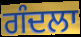
ਗੰਦਲਾ